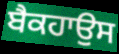
ਬੈਕਹਾਉਸ